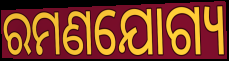
ରମଣଯୋଗ୍ୟ